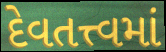
દેવતત્ત્વમાં